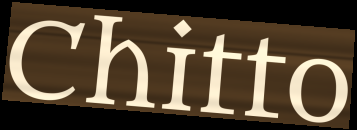
Chitto